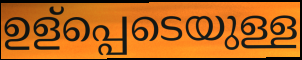
ഉള്പ്പെടെയുള്ള